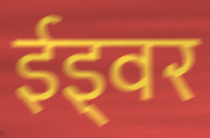
ईइ्वर